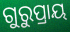
ଗୁରୁପ୍ରାୟ